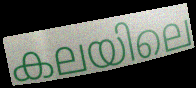
കലയിലെ